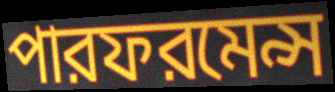
পারফরমেন্স